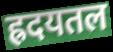
ह्रदयतल